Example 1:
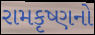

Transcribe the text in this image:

રામકૃષ્ણનો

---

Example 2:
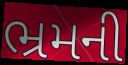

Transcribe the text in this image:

ભ્રમની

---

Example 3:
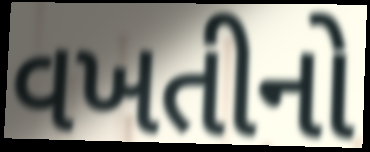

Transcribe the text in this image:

વખતીનો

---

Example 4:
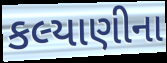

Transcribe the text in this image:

કલ્યાણીના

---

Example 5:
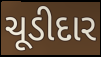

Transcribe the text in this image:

ચૂડીદાર